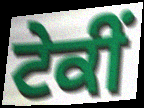
ਟੇਕੀਂ